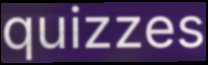
quizzes